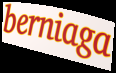
berniaga